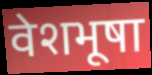
वेशभूषा